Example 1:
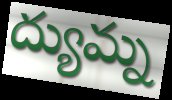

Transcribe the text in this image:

ద్యుమ్న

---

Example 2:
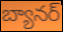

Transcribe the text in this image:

బ్యానర్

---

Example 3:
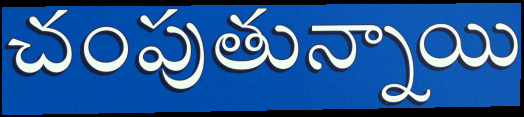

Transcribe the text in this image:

చంపుతున్నాయి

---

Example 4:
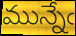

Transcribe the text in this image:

మున్నేఁ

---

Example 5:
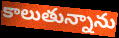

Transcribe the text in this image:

కాలుతున్నాను